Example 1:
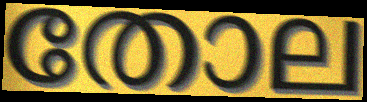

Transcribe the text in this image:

തോല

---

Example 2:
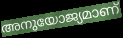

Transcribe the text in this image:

അനുയോജ്യമാണ്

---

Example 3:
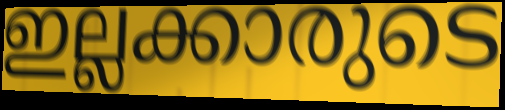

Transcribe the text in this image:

ഇല്ലക്കാരുടെ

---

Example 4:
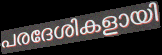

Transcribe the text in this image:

പരദേശികളായി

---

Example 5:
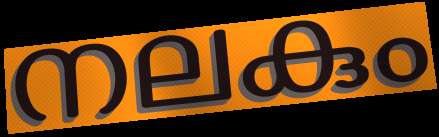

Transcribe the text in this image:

നലകും